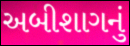
અબીશાગનું